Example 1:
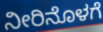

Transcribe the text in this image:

ನೀರಿನೊಳಗೆ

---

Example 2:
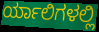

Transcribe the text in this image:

ರ್ಯಾಲಿಗಳಲ್ಲಿ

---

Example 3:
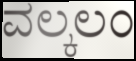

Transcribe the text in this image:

ವಲ್ಕಲಂ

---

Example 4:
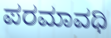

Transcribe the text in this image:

ಪರಮಾವಧಿ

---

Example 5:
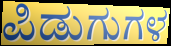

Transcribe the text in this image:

ಪಿಡುಗುಗಳ